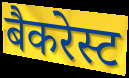
बैकरेस्ट